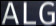
ALG